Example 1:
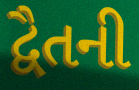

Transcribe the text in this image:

દ્વૈતની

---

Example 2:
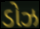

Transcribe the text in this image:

ડોઝ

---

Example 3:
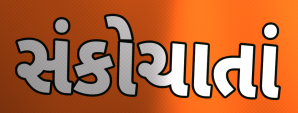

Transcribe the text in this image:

સંકોચાતાં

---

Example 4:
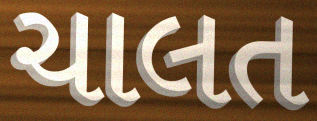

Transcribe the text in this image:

ચાલત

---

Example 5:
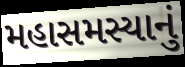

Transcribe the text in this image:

મહાસમસ્યાનું